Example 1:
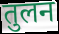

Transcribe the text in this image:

तुलन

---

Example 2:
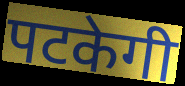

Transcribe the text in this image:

पटकेगी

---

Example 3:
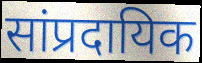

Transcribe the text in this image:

सांप्रदायिक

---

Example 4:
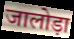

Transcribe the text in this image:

जालोड़ा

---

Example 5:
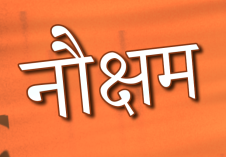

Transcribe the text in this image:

नौक्षम